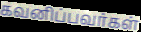
கவனிப்பவர்கள்